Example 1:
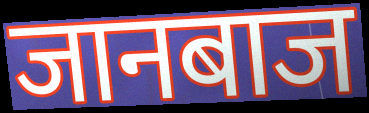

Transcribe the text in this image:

जानबाज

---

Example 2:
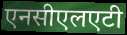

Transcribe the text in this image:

एनसीएलएटी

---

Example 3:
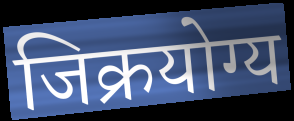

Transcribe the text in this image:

जिक्रयोग्य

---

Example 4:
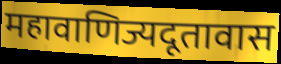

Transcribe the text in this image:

महावाणिज्यदूतावास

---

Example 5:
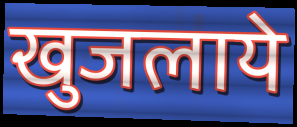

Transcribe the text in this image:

खुजलाये